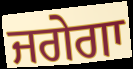
ਜਗੇਗਾ